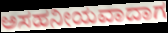
ಅಸಹನೀಯವಾದಾಗ